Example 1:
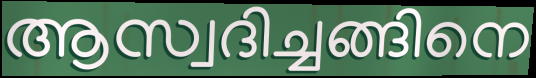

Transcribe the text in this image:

ആസ്വദിച്ചങ്ങിനെ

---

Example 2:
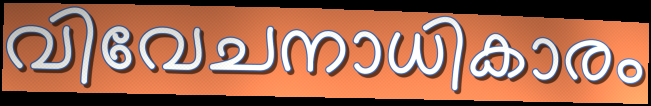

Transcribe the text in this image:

വിവേചനാധികാരം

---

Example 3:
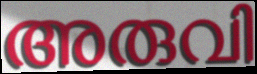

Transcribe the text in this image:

അരുവി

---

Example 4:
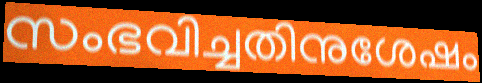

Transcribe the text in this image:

സംഭവിച്ചതിനുശേഷം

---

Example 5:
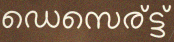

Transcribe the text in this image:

ഡെസെര്ട്ട്